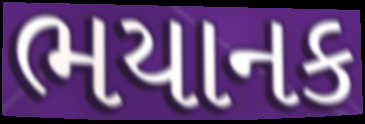
ભયાનક